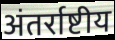
अंतर्राष्टीय